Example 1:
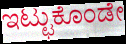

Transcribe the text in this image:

ಇಟ್ಟುಕೊಂಡೇ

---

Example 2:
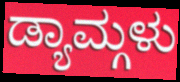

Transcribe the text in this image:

ಡ್ಯಾಮ್ಗಳು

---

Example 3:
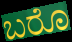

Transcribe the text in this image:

ಬರೊ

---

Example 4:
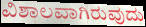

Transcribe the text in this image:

ವಿಶಾಲವಾಗಿರುವುದು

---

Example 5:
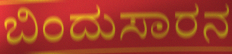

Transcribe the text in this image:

ಬಿಂದುಸಾರನ